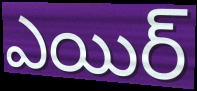
ఎయిర్